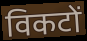
विकटों